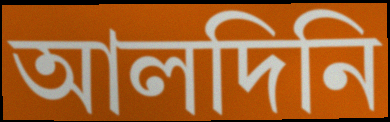
আলদিনি